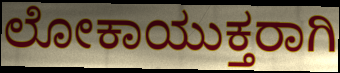
ಲೋಕಾಯುಕ್ತರಾಗಿ